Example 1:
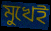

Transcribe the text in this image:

মুখেই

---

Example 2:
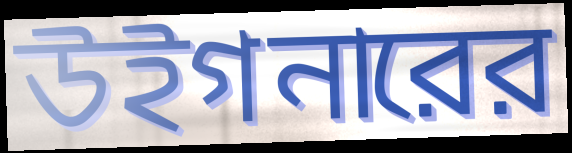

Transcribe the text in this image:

উইগনারের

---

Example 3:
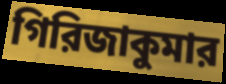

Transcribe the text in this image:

গিরিজাকুমার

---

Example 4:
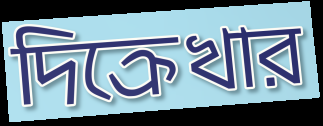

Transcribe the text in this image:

দিক্রেখার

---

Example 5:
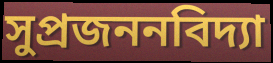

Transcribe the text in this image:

সুপ্রজননবিদ্যা